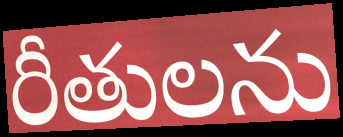
రీతులను